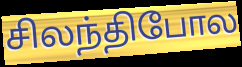
சிலந்திபோல